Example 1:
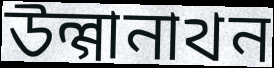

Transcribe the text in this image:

উল্গানাথন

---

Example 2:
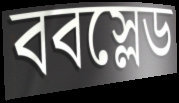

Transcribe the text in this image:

ববস্লেড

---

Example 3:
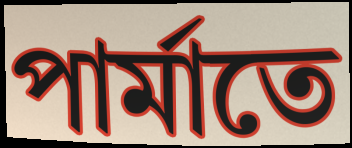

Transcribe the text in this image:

পার্মাতে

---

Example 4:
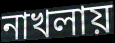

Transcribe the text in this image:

নাখলায়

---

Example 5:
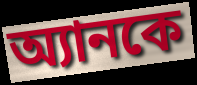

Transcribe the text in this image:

অ্যানকে